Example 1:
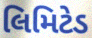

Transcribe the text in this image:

લિમિટેડ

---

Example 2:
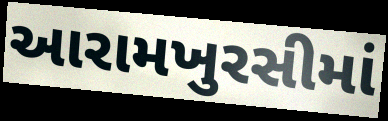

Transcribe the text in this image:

આરામખુરસીમાં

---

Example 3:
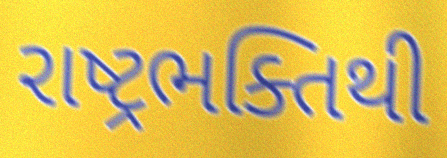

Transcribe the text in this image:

રાષ્ટ્રભક્તિથી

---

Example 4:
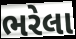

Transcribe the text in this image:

ભરેલા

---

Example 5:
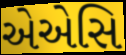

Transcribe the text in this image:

એએસિ